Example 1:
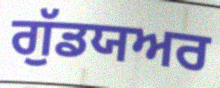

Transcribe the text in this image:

ਗੁੱਡਯਅਰ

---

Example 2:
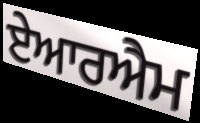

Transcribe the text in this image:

ਏਆਰਐਮ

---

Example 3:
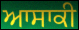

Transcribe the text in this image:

ਆਸਾਕੀ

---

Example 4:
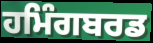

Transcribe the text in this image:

ਹਮਿੰਗਬਰਡ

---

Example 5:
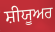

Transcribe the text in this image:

ਸ਼ੀਯੂਅਰ